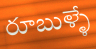
రూబుళ్ళే